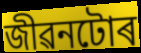
জীৱনটোৰ